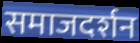
समाजदर्शन